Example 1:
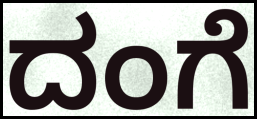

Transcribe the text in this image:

ದಂಗೆ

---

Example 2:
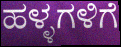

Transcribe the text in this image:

ಹಳ್ಳಗಳಿಗೆ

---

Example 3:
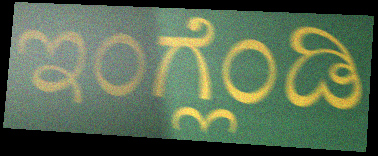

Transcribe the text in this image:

ಇಂಗ್ಲೆಂಡಿ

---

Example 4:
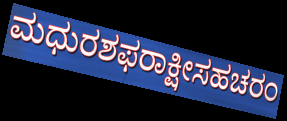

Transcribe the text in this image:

ಮಧುರಶಫರಾಕ್ಷೀಸಹಚರಂ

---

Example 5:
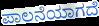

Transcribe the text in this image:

ಪಾಲನೆಯಾಗದೆ